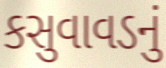
કસુવાવડનું